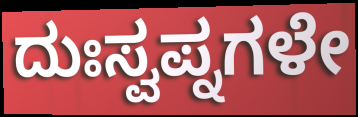
ದುಃಸ್ವಪ್ನಗಳೇ